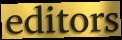
editors